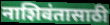
नाशिवंतासाठी